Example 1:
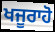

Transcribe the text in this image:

ਖਜੂਰਾਹੋ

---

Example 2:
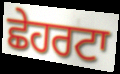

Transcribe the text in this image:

ਛੇਹਰਟਾ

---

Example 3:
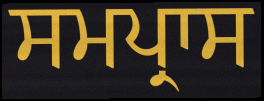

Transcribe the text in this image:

ਸਮਪ੍ਰਾਸ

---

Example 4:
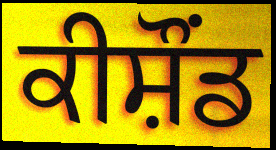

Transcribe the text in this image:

ਕੀਸ਼ੌਂਡ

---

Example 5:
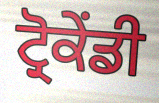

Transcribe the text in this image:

ਟ੍ਰੋਕੇਂਡੀ